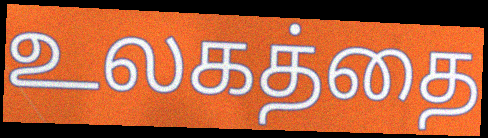
உலகத்தை